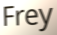
Frey